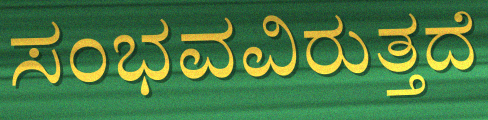
ಸಂಭವವಿರುತ್ತದೆ